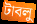
টাবলু